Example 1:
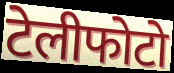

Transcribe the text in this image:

टेलीफोटो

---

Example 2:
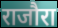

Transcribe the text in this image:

राजौरा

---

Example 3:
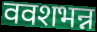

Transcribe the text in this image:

ववशभन्न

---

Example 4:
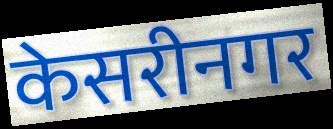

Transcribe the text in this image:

केसरीनगर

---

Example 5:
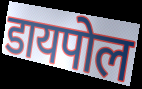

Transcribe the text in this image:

डायपोल